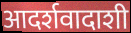
आदर्शवादाशी